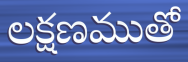
లక్షణముతో